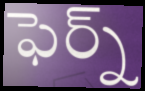
ఫెర్న్